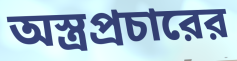
অস্ত্রপ্রচারের